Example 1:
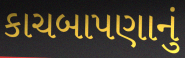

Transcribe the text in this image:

કાચબાપણાનું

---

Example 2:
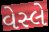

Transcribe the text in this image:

વેસ્લે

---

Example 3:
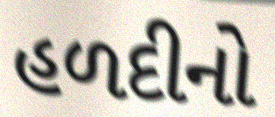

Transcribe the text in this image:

હળદીનો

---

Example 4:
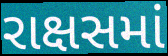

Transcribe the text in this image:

રાક્ષસમાં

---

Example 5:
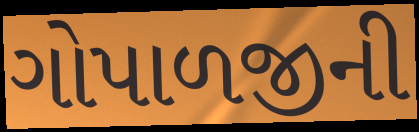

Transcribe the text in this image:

ગોપાળજીની